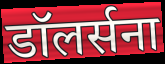
डॉलर्सना